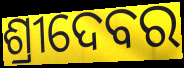
ଶ୍ରୀଦେବର